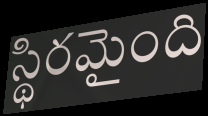
స్థిరమైంది